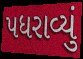
પધરાવ્યું